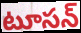
టూసన్